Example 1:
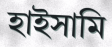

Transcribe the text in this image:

হাইসামি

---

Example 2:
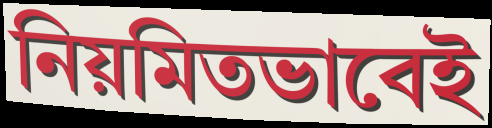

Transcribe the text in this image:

নিয়মিতভাবেই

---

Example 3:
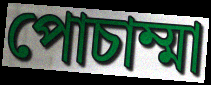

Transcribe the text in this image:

পোচাম্মা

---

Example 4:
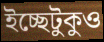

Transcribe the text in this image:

ইচ্ছেটুকুও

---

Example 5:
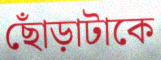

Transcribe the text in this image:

ছোঁড়াটাকে